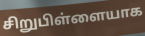
சிறுபிள்ளையாக